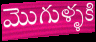
మొగుళ్ళకి